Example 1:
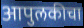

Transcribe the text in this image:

आपुलकीचा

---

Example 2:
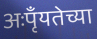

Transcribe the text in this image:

अःपृँयतेच्या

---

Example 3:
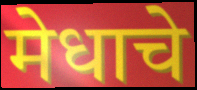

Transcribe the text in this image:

मेधाचे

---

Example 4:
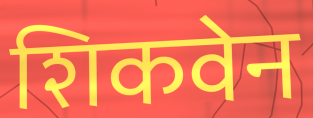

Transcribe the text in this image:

शिकवेन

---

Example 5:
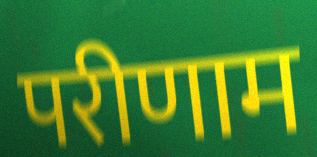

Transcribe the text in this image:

परीणाम